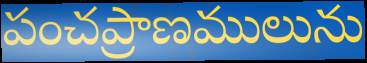
పంచప్రాణములును